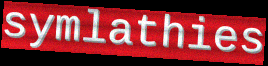
symlathies